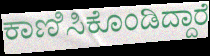
ಕಾಣಿಸಿಕೊಂಡಿದ್ದಾರೆ